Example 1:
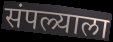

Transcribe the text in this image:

संपल्याला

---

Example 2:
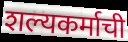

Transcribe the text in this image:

शल्यकर्माची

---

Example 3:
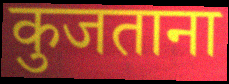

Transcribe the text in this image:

कुजताना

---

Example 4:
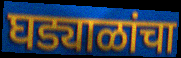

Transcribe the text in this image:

घड्याळांचा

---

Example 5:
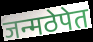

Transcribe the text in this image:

जन्मठेपेत